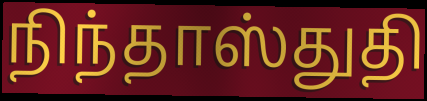
நிந்தாஸ்துதி